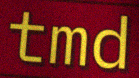
tmd